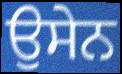
ਉਸੇਨ